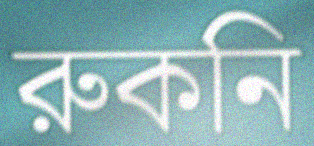
রুকনি